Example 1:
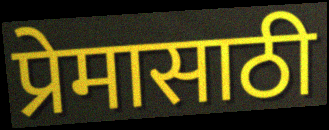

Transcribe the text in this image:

प्रेमासाठी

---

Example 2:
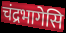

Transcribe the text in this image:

चंद्रभागेसि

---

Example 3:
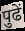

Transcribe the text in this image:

पुढें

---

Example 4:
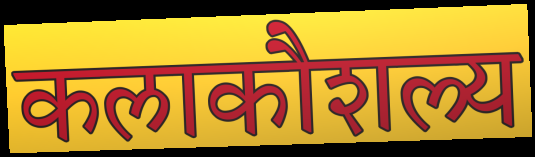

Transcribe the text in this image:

कलाकौशल्य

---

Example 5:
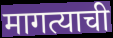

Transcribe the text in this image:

मागत्याची